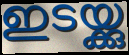
ഇടയ്ക്കു